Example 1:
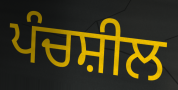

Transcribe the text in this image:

ਪੰਚਸ਼ੀਲ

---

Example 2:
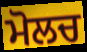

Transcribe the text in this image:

ਮੋਲਚ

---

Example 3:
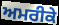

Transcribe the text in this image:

ਅਮਰੀਕੇ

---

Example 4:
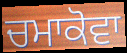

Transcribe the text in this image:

ਚਮਾਕੋਵਾ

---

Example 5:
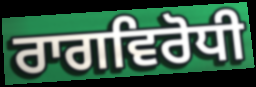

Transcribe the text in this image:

ਰਾਗਵਿਰੋਧੀ